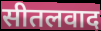
सीतलवाद